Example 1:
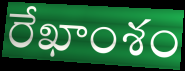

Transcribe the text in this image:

రేఖాంశం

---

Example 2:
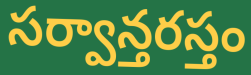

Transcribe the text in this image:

సర్వాన్తరస్తం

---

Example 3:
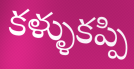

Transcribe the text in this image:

కళ్ళుకప్పి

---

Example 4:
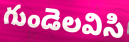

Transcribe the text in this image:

గుండెలవిసి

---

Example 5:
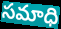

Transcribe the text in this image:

సమాధి